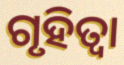
ଗୃହିତ୍ବା